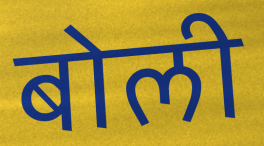
बोली